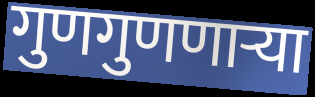
गुणगुणणाऱ्या